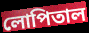
লোপিতাল